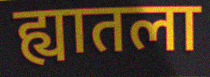
ह्यातला